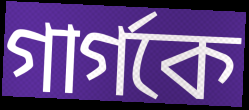
গার্গকে